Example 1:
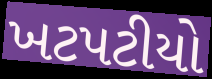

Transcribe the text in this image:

ખટપટીયો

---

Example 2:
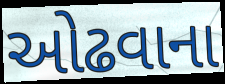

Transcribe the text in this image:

ઓઢવાના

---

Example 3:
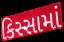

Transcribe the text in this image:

કિસ્સામાં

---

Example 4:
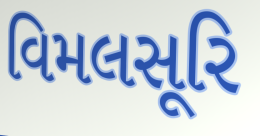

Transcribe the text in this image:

વિમલસૂરિ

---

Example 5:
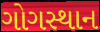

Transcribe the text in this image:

ગોગસ્થાન